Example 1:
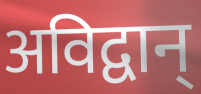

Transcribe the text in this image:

अविद्वान्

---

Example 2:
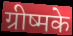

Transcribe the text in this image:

ग्रीष्मके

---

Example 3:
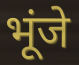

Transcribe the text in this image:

भूंजे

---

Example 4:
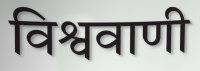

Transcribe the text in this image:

विश्ववाणी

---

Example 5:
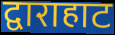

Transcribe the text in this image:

द्वाराहाट